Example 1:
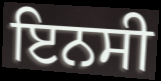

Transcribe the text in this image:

ਇਨਸੀ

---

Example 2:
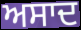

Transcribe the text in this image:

ਅਸਾਦ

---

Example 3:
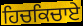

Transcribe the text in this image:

ਹਿਚਕਿਚਾਏ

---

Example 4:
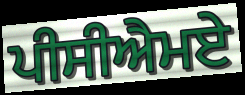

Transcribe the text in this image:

ਪੀਸੀਐਮਏ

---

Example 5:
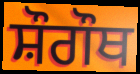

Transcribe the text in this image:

ਸ਼ੌਗੌਥ